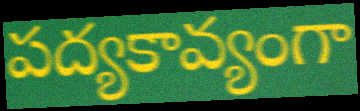
పద్యకావ్యంగా